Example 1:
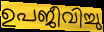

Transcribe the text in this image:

ഉപജീവിച്ചു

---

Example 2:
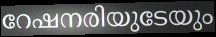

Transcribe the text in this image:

റേഷനരിയുടേയും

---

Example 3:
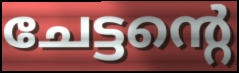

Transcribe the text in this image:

ചേട്ടന്റെ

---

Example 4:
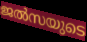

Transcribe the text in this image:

ജൽസയുടെ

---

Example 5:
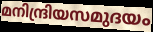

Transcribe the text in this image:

മനിന്ദ്രിയസമുദയം